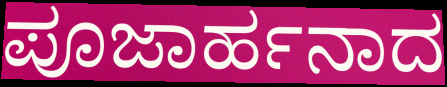
ಪೂಜಾರ್ಹನಾದ